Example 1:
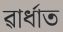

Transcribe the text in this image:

ৱাৰ্ধাত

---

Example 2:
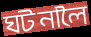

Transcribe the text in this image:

ঘটনালৈ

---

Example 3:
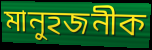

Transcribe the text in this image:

মানুহজনীক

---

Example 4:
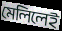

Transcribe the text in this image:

মেলিলেই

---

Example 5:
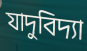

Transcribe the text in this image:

যাদুবিদ্যা